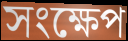
সংক্ষেপ